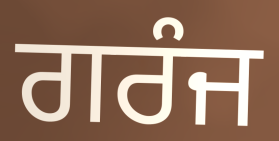
ਗਰੰਜ